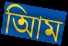
আিম